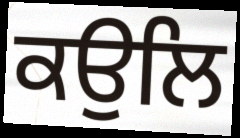
ਕਉਲਿ